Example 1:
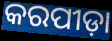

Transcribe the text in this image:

କରପୀଡ଼ା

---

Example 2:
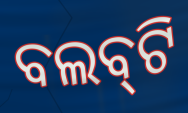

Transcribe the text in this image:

ବଲବ୍‌ଟି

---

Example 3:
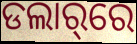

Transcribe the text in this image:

ଡଲାର୍‌ରେ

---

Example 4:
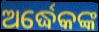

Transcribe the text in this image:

ଅର୍ଦ୍ଧେକଙ୍କ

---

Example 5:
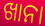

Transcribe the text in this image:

ଖାନା